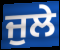
ਜੁਲੇ